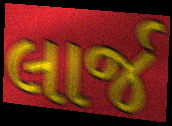
લાર્જ